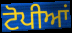
ਟੋਪੀਆਂ